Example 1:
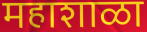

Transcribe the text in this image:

महाशाळा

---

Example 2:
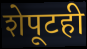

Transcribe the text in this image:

शेपूटही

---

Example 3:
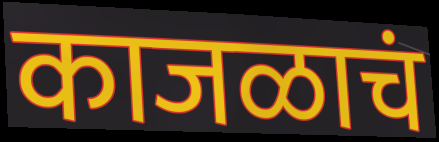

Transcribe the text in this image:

काजळाचं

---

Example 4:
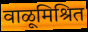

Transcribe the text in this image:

वाळूमिश्रित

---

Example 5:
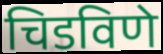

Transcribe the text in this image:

चिडविणे